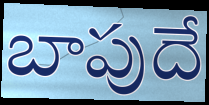
బాపుదే